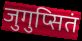
जुगुप्सितं